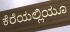
ಕೆರೆಯಲ್ಲಿಯೂ